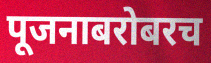
पूजनाबरोबरच